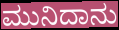
ಮುನಿದಾನು